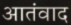
आतंवाद